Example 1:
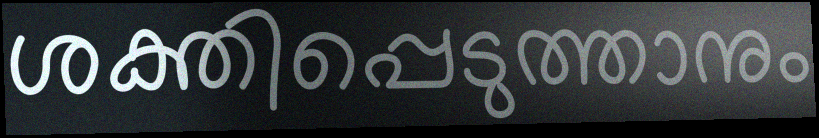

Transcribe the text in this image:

ശക്തിപ്പെടുത്താനും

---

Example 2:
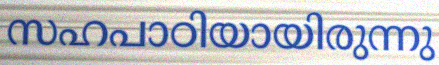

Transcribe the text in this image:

സഹപാഠിയായിരുന്നു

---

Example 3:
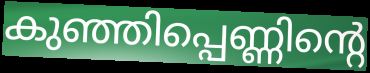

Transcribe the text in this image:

കുഞ്ഞിപ്പെണ്ണിന്റെ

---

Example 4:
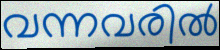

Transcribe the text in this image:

വന്നവരിൽ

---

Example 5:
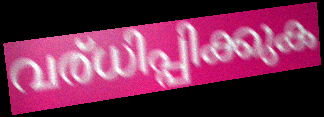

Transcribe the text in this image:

വര്ധിപ്പിക്കുക